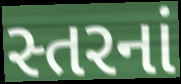
સ્તરનાં